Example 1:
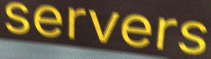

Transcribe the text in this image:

servers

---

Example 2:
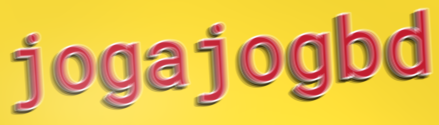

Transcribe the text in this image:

jogajogbd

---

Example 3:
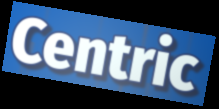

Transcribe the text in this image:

Centric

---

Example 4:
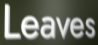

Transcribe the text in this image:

Leaves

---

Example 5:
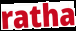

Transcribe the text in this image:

ratha